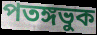
পতঙ্গভুক